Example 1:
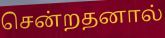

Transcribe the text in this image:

சென்றதனால்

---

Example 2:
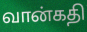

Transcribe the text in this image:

வான்கதி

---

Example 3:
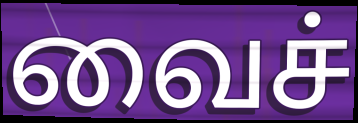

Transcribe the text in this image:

வைச்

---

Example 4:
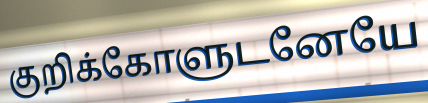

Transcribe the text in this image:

குறிக்கோளுடனேயே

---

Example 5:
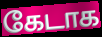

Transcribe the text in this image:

கேடாக